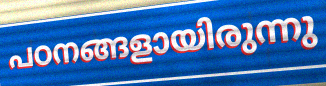
പഠനങ്ങളായിരുന്നു